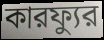
কারফ্যুর